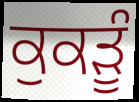
ਕੁਕੜੂੰ